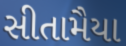
સીતામૈયા